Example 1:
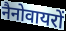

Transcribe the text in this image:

नैनोवायरों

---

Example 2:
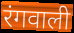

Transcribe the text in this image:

रंगवाली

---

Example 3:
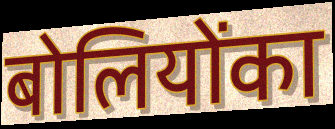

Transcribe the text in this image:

बोलियोंका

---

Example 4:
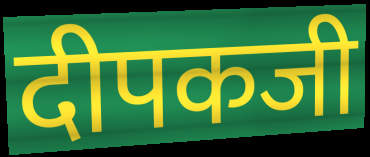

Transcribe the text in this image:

दीपकजी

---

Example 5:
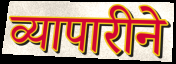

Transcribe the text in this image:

व्यापारीने